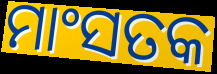
ମାଂସତକ